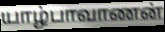
யாழ்பாவாணன்